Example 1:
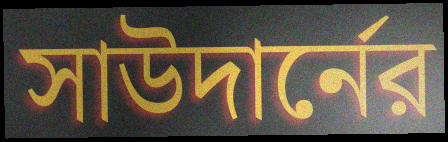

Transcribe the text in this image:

সাউদার্নের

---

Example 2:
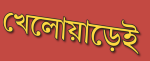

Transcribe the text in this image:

খেলোয়াড়েই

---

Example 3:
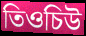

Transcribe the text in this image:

তিওচিউ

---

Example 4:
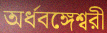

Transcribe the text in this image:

অর্ধবঙ্গেশ্বরী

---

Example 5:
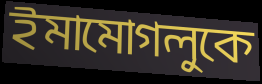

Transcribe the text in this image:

ইমামোগলুকে